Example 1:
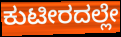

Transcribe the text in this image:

ಕುಟೀರದಲ್ಲೇ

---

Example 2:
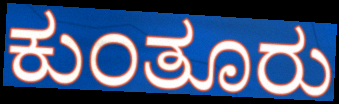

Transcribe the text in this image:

ಕುಂತೂರು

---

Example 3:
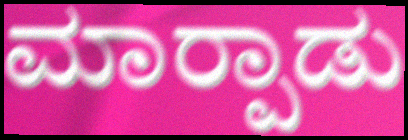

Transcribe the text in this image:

ಮಾರ‍್ಪಾಡು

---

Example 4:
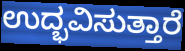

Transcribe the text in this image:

ಉದ್ಭವಿಸುತ್ತಾರೆ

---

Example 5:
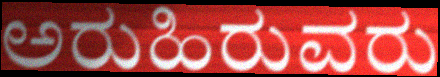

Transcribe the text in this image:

ಅರುಹಿರುವರು